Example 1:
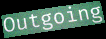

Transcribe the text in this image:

Outgoing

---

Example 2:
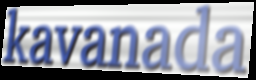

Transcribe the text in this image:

kavanada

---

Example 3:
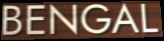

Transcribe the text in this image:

BENGAL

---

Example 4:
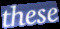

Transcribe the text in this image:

these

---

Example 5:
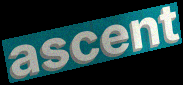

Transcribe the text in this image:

ascent